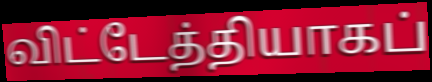
விட்டேத்தியாகப்